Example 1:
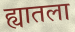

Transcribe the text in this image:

ह्यातला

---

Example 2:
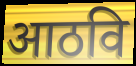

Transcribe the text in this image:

आठवि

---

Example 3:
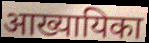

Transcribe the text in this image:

आख्यायिका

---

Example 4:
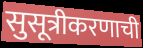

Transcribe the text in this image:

सुसूत्रीकरणाची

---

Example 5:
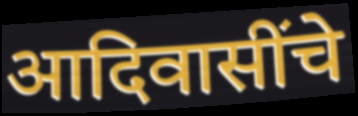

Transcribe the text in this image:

आदिवासींचे